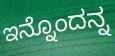
ಇನ್ನೊಂದನ್ನ